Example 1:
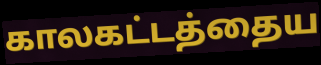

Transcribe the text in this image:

காலகட்டத்தைய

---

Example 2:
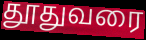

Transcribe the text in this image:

தூதுவரை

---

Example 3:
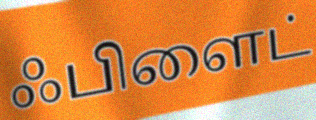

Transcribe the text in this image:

ஃபிளைட்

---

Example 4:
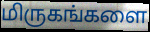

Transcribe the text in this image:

மிருகங்களை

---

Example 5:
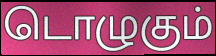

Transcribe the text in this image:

டொழுகும்